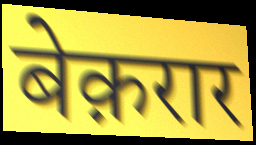
बेक़रार